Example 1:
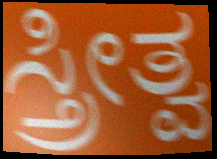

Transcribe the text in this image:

ಸ್ತ್ರೀತ್ವ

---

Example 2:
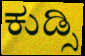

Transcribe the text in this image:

ಕುಡ್ಸಿ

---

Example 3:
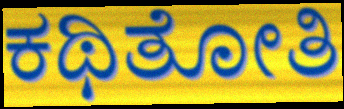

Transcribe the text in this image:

ಕಥಿತೋತಿ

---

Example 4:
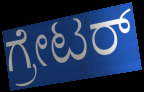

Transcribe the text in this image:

ಗ್ರೇಟರ್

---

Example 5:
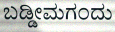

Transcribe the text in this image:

ಬಡ್ಡೀಮಗಂದು